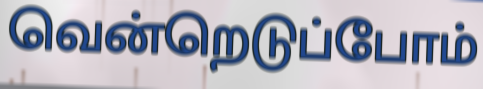
வென்றெடுப்போம்